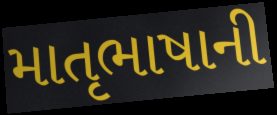
માતૃભાષાની